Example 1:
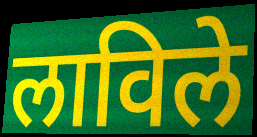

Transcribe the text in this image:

लाविले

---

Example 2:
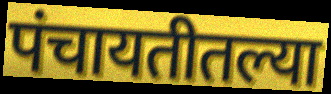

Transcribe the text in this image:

पंचायतीतल्या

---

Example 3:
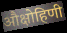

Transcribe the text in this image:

औक्षोहिणी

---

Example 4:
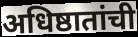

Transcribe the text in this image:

अधिष्ठातांची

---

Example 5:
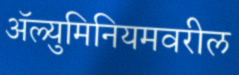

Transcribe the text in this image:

ॲल्युमिनियमवरील